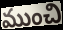
ముంచి